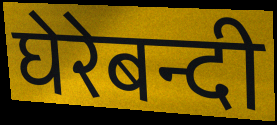
घेरेबन्दी